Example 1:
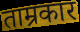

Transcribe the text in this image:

ताम्रकार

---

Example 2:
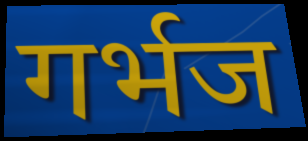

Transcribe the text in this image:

गर्भज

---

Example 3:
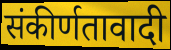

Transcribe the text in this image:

संकीर्णतावादी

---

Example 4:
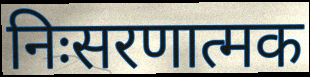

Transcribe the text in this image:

निःसरणात्मक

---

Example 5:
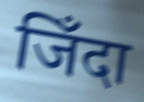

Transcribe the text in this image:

जिँदा